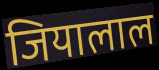
जियालाल